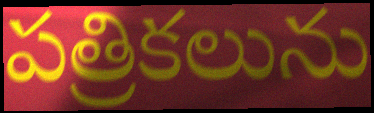
పత్రికలును